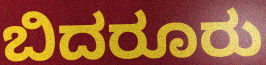
ಬಿದರೂರು